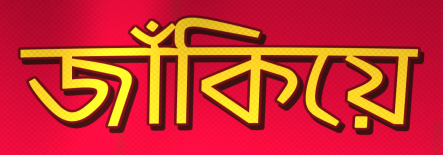
জাঁকিয়ে